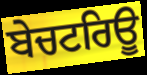
ਬੇਚਟਰਿਊ